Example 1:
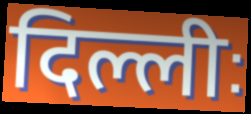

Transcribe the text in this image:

दिल्लीः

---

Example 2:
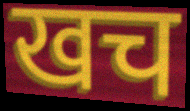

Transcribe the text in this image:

खच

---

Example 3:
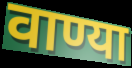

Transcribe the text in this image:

वाण्या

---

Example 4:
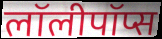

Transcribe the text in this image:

लॉलीपॉप्स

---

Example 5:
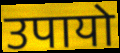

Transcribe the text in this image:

उपायो